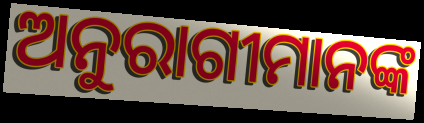
ଅନୁରାଗୀମାନଙ୍କ